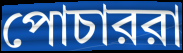
পোচাররা